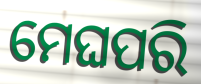
ମେଘପରି